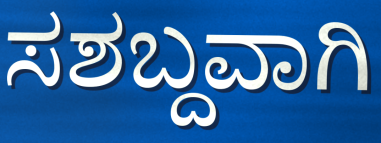
ಸಶಬ್ದವಾಗಿ